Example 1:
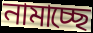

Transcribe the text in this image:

নামাচ্ছে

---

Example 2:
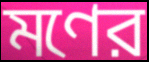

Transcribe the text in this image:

মণের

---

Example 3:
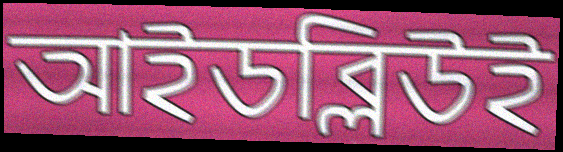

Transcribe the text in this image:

আইডব্লিউই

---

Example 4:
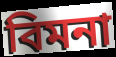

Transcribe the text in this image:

বিমনা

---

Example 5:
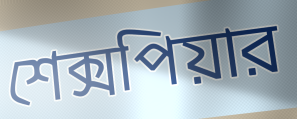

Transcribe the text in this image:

শেক্সপিয়ার